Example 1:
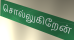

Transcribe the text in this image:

சொல்லுகிறேன்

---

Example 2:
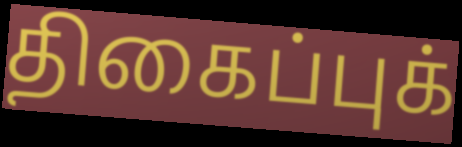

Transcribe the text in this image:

திகைப்புக்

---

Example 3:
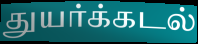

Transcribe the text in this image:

துயர்க்கடல்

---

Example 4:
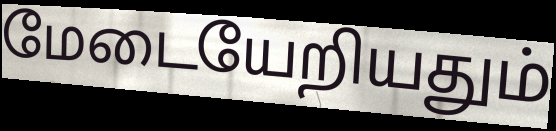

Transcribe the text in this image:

மேடையேறியதும்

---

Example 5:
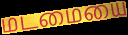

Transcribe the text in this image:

மடமையை